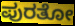
ಪುರತೋ